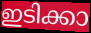
ഇടിക്കാ